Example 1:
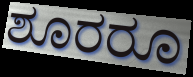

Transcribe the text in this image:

ಶೂರರೂ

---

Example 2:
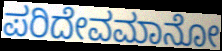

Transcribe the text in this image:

ಪರಿದೇವಮಾನೋ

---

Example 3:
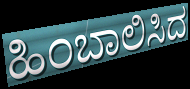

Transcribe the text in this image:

ಹಿಂಬಾಲಿಸಿದ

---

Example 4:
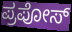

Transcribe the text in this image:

ಪ್ರಪೋಸ್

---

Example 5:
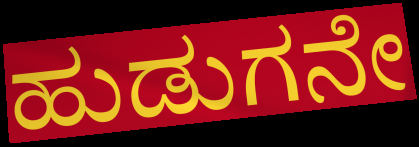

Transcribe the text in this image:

ಹುಡುಗನೇ